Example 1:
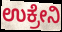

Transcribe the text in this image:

ಉಕ್ರೇನಿ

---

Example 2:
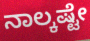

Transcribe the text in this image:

ನಾಲ್ಕಷ್ಟೇ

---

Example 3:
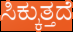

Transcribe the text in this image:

ಸಿಕ್ಕುತ್ತದೆ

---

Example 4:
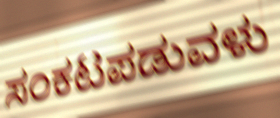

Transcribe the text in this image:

ಸಂಕಟಪಡುವಳು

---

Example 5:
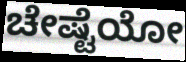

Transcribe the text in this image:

ಚೇಷ್ಟೆಯೋ